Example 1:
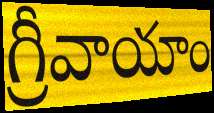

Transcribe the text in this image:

గ్రీవాయాం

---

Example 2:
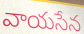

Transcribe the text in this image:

వాయసేన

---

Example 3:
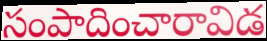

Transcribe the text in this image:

సంపాదించారావిడ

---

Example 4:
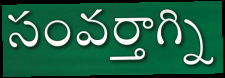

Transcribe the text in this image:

సంవర్తాగ్ని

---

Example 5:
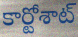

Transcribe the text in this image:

కార్టోశాట్